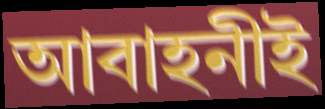
আবাহনীই